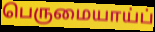
பெருமையாய்ப்